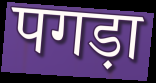
पगड़ा